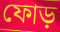
ফোড়